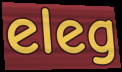
eleg